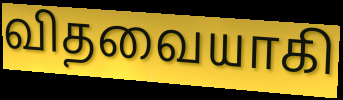
விதவையாகி